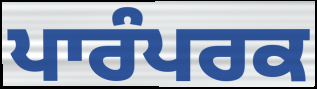
ਪਾਰੰਪਰਕ